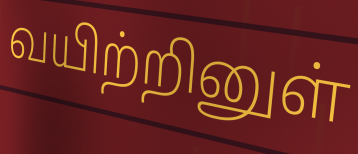
வயிற்றினுள்